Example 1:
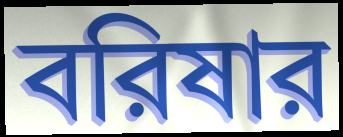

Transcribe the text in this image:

বরিষার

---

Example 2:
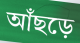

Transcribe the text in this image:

আঁছড়ে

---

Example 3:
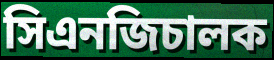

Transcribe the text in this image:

সিএনজিচালক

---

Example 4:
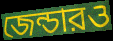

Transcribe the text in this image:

জেন্ডারও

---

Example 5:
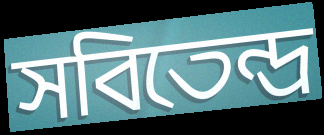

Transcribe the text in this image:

সবিতেন্দ্র